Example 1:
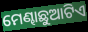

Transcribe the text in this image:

ମେଣ୍ଢାଛୁଆଟିଏ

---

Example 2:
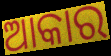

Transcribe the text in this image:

ଆକାର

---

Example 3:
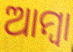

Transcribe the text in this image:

ଆମ୍ବା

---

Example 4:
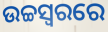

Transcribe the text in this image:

ଉଚ୍ଚସ୍ୱରରେ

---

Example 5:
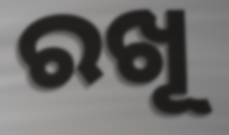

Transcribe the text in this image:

ରଖୂ